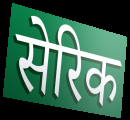
सेरिक